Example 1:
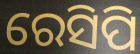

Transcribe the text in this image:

ରେସିପି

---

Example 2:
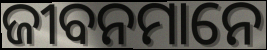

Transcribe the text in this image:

ଜୀବନମାନେ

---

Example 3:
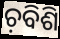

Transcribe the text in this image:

ଚ଼ବିଶି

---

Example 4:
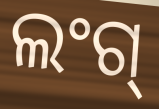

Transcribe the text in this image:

ଲଂଗ୍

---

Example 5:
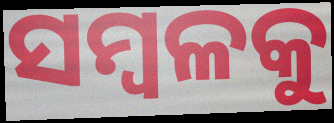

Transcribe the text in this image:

ସମ୍ବଳକୁ